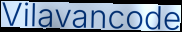
Vilavancode